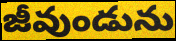
జీవుండును